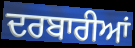
ਦਰਬਾਰੀਆਂ